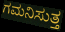
ಗಮನಿಸುತ್ತ